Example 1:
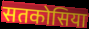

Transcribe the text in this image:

सतकोसिया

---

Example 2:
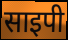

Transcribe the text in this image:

साइपी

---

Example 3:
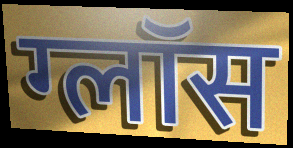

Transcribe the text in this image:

ग्लॉस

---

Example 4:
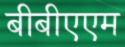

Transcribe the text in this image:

बीबीएएम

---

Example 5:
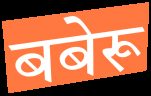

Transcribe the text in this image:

बबेरू